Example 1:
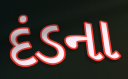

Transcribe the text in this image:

દંડના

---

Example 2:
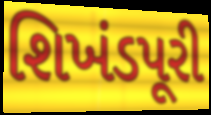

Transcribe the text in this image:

શિખંડપૂરી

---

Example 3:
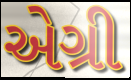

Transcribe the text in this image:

એગ્રી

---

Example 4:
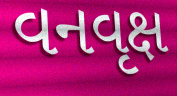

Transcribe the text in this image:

વનવૃક્ષ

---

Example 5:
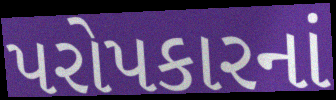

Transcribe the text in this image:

પરોપકારનાં